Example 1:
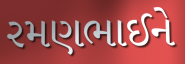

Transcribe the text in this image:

રમણભાઈને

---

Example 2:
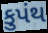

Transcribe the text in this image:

કુપંથ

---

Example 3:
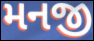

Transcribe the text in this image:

મનજી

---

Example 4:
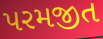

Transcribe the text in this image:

પરમજીત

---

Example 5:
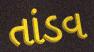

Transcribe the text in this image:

તાંડવ